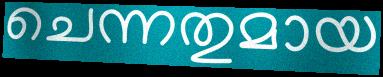
ചെന്നതുമായ